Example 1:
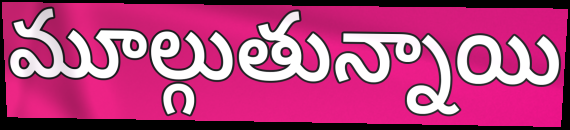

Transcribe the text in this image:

మూల్గుతున్నాయి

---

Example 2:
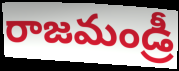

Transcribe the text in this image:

రాజమండ్రీ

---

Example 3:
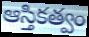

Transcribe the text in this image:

ఆస్తికత్వం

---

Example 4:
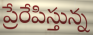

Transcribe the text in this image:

ప్రేరేపిస్తున్న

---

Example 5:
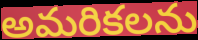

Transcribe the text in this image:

అమరికలను